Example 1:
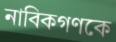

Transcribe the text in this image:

নাবিকগণকে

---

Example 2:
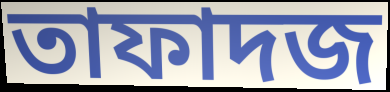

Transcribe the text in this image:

তাফাদজ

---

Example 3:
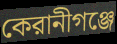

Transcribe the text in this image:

কেরানীগঞ্জে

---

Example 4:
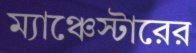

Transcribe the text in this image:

ম্যাঞ্চেস্টারের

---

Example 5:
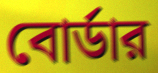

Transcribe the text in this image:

বোর্ডার